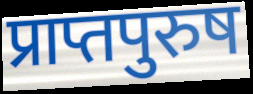
प्राप्तपुरुष